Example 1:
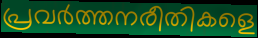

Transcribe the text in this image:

പ്രവർത്തനരീതികളെ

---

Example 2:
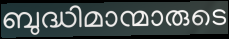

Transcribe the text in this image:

ബുദ്ധിമാന്മാരുടെ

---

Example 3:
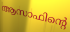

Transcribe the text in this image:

ആസാഫിന്റെ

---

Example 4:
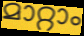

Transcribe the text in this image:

മാറ്റാം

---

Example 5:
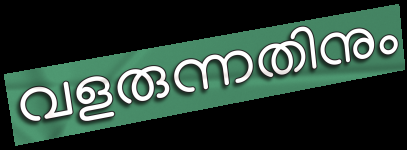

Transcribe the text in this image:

വളരുന്നതിനും